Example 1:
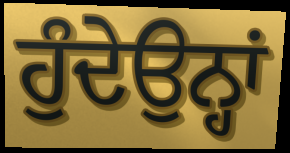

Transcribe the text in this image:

ਹੁੰਦੇਉਨ੍ਹਾਂ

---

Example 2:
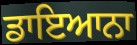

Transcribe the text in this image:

ਡਾਇਆਨਾ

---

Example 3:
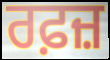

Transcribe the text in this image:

ਰਫ਼ਜ਼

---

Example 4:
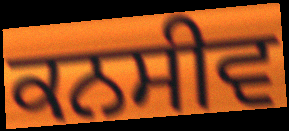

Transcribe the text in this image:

ਕਨਸੀਵ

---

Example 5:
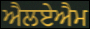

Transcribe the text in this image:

ਐਲਏਐਮ